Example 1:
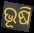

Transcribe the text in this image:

ଭୂଷି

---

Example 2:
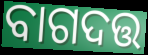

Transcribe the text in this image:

ବାଗଦତ୍ତ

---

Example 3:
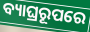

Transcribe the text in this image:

ବ୍ୟାଘ୍ରରୂପରେ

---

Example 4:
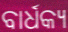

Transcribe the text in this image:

ବାର୍ଧକ୍ୟ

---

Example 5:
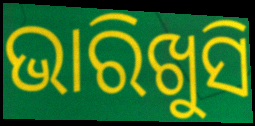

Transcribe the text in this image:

ଭାରିଖୁସି